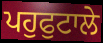
ਪਹੁਫੁਟਾਲੇ